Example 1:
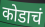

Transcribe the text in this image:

कोडाचं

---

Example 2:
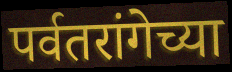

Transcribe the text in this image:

पर्वतरांगेच्या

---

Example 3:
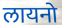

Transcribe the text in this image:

लायनो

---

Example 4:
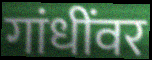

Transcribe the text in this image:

गांधींवर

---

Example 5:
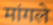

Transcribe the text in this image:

मांगले